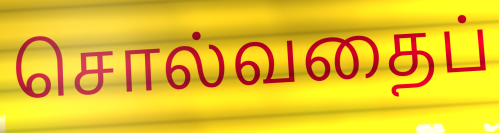
சொல்வதைப்